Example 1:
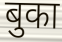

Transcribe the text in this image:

बुका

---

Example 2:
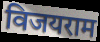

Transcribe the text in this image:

विजयराम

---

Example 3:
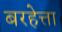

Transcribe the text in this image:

बरहेत्ता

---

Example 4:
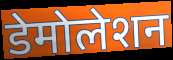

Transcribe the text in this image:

डेमोलेशन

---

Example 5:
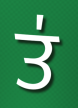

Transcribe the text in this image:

उ॑